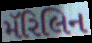
મૅરિલિન